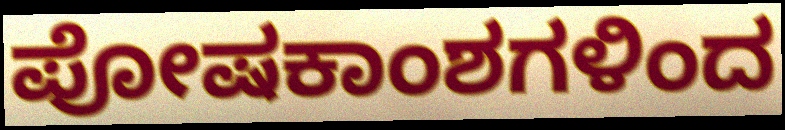
ಪೋಷಕಾಂಶಗಳಿಂದ